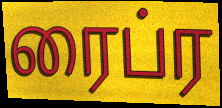
ரைப்ர